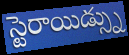
స్టెరాయిడ్స్ను